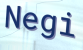
Negi